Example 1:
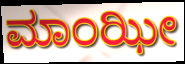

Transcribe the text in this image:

ಮಾಂಝೀ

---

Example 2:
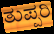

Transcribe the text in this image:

ತುಪ್ಪರಿ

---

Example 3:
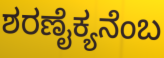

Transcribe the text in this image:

ಶರಣೈಕ್ಯನೆಂಬ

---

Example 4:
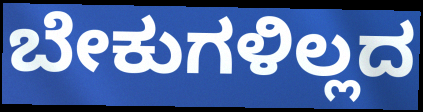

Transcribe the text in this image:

ಬೇಕುಗಳಿಲ್ಲದ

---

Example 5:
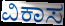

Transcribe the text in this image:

ವಿಕಾಸ